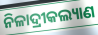
ନିଳାଦ୍ରୀକଲ୍ୟାଣ